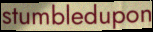
stumbledupon